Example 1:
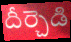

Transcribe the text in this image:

దీర్చెడి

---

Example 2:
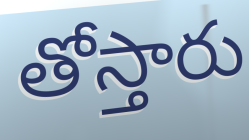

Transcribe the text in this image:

తోస్తారు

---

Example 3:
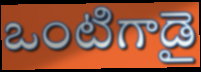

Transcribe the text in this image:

ఒంటిగాడై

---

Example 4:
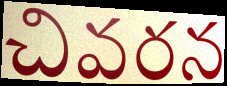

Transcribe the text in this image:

చివరన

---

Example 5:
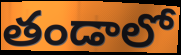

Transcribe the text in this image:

తండాలో